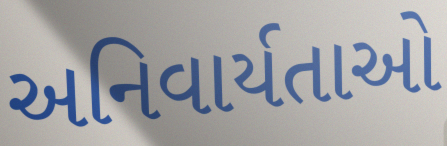
અનિવાર્યતાઓ